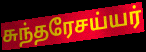
சுந்தரேசய்யர்